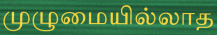
முழுமையில்லாத